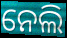
ନେଲି